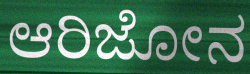
ಆರಿಜೋನ